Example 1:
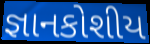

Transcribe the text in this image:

જ્ઞાનકોશીય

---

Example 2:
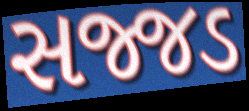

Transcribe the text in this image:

સજ્જડ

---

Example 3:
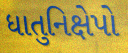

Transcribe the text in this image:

ધાતુનિક્ષેપો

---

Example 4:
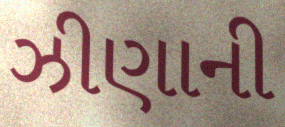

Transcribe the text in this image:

ઝીણાની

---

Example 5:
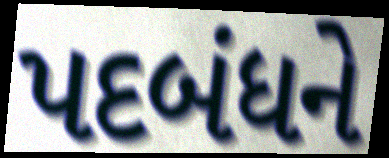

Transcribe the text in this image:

પદબંધને